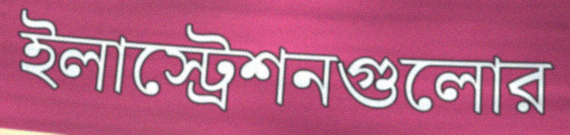
ইলাস্ট্রেশনগুলোর